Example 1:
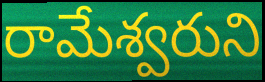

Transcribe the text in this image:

రామేశ్వరుని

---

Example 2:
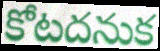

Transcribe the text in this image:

కోటదనుక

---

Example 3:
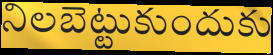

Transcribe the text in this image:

నిలబెట్టుకుందుకు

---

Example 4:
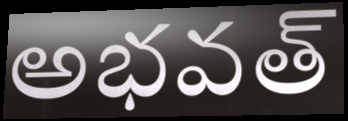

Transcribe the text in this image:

అభవత్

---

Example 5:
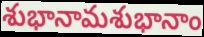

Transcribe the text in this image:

శుభానామశుభానాం